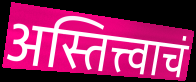
अस्तित्त्वाचं